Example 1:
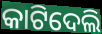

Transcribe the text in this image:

କାଟିଦେଲି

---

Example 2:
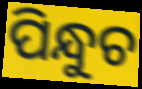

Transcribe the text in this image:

ପିନ୍ଧୁଚ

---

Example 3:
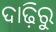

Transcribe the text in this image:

ଦାଢ଼ିରୁ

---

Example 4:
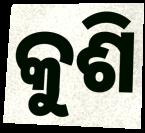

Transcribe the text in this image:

କୁଶି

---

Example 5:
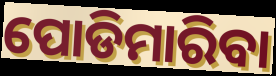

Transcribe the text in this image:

ପୋଡିମାରିବା